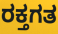
ರಕ್ತಗತ